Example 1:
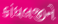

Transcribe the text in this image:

કાંધલજીને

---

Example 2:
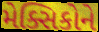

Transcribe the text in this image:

મેક્સિકોને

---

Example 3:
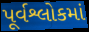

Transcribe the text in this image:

પૂર્વશ્લોકમાં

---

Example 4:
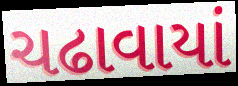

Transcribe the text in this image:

ચઢાવાયાં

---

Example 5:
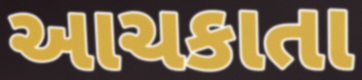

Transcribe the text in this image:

આચકાતા